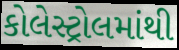
કોલેસ્ટ્રોલમાંથી